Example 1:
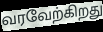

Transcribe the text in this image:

வரவேற்கிறது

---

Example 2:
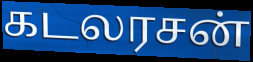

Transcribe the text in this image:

கடலரசன்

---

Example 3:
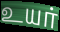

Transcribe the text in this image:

உயர்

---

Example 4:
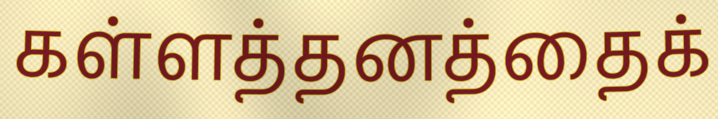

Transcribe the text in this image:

கள்ளத்தனத்தைக்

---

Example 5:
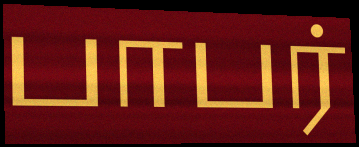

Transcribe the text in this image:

பாபர்